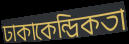
ঢাকাকেন্দ্রিকতা